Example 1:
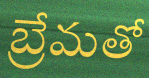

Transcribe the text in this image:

బ్రేమతో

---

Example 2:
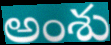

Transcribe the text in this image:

అంశు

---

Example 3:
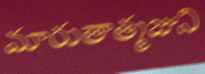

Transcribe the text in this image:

మారుతాత్మజుని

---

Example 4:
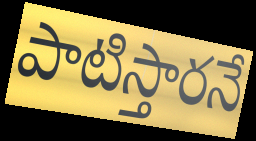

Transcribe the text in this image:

పాటిస్తారనే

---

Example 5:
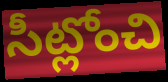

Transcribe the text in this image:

సీట్లోంచి